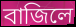
বাজিলে